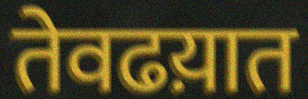
तेवढय़ात